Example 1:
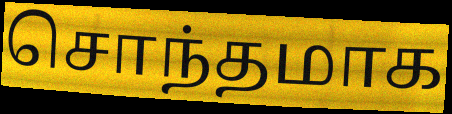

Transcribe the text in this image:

சொந்தமாக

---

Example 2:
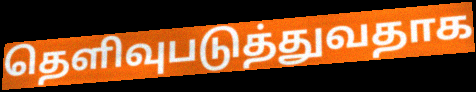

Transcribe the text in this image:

தெளிவுபடுத்துவதாக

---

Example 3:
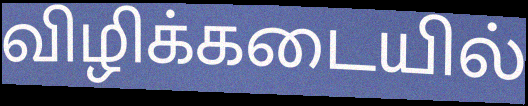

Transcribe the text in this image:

விழிக்கடையில்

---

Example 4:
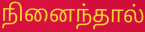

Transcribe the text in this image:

நினைந்தால்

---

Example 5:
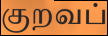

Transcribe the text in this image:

குறவப்